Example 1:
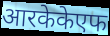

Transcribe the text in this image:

आरकेकेएफ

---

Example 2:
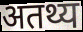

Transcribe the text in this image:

अतथ्य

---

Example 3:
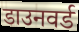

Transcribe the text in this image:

डाउनवर्ड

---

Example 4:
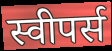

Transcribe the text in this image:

स्वीपर्स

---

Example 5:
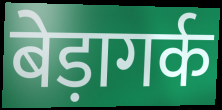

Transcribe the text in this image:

बेड़ागर्क